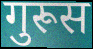
गुरूस